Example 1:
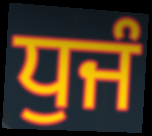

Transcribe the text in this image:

ਧੁਜੰ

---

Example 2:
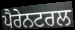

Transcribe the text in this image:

ਪੈਰੇਨਟਰਲ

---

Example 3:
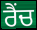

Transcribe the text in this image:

ਰੈਂਚ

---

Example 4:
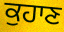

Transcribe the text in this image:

ਕੁਹਾਣ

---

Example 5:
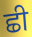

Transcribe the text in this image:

ਛੀ